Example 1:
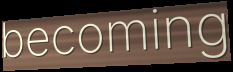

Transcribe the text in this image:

becoming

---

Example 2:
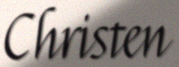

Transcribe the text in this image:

Christen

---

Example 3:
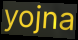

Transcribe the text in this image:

yojna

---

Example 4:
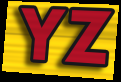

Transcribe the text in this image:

YZ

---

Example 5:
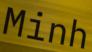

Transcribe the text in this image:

Minh